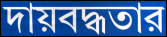
দায়বদ্ধতার